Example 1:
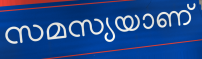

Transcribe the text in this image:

സമസ്യയാണ്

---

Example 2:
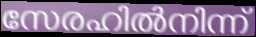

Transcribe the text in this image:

സേരഹിൽനിന്ന്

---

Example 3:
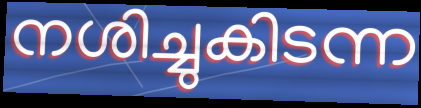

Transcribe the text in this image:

നശിച്ചുകിടന്ന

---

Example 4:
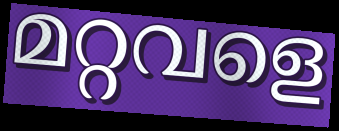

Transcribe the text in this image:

മറ്റവളെ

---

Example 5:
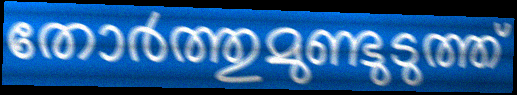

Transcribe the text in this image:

തോർത്തുമുണ്ടുടുത്ത്